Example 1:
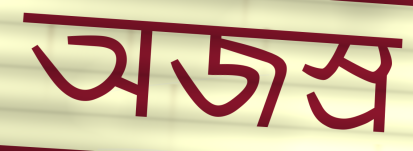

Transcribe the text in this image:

অজস্র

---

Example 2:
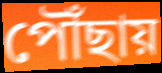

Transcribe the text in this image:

পৌঁছায়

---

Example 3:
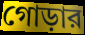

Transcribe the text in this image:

গোড়ার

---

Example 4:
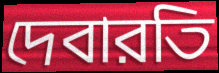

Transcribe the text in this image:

দেবারতি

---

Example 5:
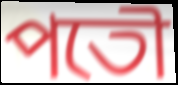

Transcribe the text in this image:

পতৌ